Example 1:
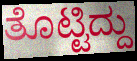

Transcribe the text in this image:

ತೊಟ್ಟಿದ್ದು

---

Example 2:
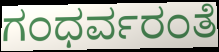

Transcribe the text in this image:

ಗಂಧರ್ವರಂತೆ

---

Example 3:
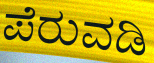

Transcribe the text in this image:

ಪೆರುವಡಿ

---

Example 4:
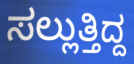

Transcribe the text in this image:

ಸಲ್ಲುತ್ತಿದ್ದ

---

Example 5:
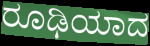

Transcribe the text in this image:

ರೂಢಿಯಾದ